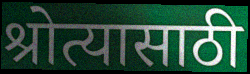
श्रोत्यासाठी